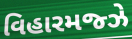
વિહારમજ્ઝે